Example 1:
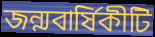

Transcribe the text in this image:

জন্মবার্ষিকীটি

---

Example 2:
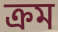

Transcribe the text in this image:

ক্রম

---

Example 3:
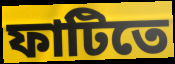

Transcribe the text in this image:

ফাটিতে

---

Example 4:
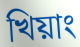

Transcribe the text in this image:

খিয়াং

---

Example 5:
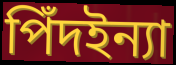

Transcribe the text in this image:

পিঁদইন্যা